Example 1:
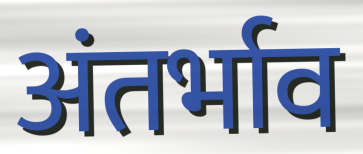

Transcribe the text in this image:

अंतर्भाव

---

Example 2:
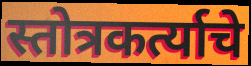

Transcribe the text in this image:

स्तोत्रकर्त्याचे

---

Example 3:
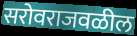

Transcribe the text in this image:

सरोवराजवळील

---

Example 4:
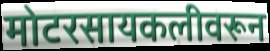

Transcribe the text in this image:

मोटरसायकलीवरून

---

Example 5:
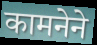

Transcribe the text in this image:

कामनेने